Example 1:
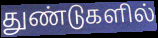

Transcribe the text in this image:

துண்டுகளில்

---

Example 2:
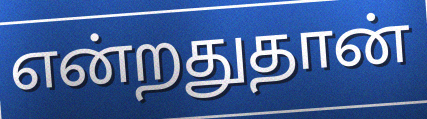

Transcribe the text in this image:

என்றதுதான்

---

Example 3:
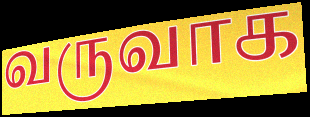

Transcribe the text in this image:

வருவாக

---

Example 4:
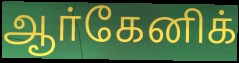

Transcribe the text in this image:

ஆர்கேனிக்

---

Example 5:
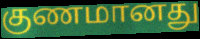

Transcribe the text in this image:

குணமானது